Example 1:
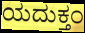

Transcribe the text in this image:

ಯದುಕ್ತಂ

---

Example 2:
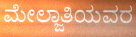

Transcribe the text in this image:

ಮೇಲ್ಜಾತಿಯವರ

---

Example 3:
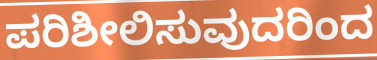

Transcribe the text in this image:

ಪರಿಶೀಲಿಸುವುದರಿಂದ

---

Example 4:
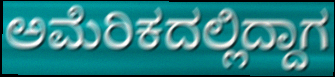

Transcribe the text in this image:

ಅಮೆರಿಕದಲ್ಲಿದ್ದಾಗ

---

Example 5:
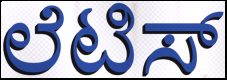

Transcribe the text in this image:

ಲೆಟಿಸ್